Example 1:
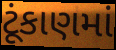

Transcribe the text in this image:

ટૂંકાણમાં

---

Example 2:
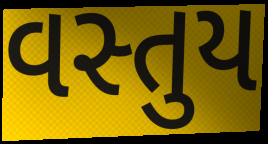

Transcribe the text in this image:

વસ્તુય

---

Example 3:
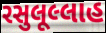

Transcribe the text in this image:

રસુલૂલ્લાહ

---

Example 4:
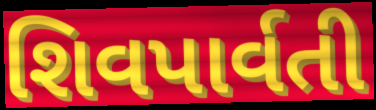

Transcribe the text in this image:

શિવપાર્વતી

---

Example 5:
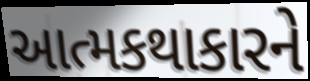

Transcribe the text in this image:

આત્મકથાકારને